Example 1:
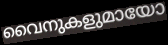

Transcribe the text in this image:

വൈനുകളുമായോ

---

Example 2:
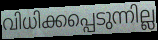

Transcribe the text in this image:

വിധിക്കപ്പെടുന്നില്ല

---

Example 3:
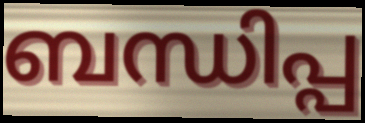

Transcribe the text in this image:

ബന്ധിപ്പ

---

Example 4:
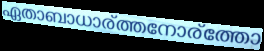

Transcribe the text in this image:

ഏതാബാധാര്ത്തനോര്ത്തോ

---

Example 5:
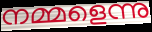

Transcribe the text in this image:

നമ്മളെന്നു